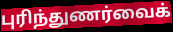
புரிந்துணர்வைக்